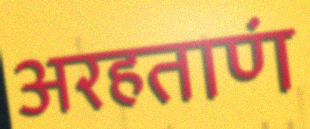
अरहताणं